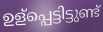
ഉള്പ്പെട്ടിട്ടുണ്ട്